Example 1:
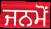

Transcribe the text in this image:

ਜਨਮੋਂ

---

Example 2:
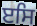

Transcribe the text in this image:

ੲਸਿ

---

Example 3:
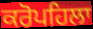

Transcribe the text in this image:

ਕਰੋਪਹਿਲਾ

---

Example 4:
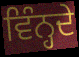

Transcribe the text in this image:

ਵਿੰਨ੍ਹਦੇ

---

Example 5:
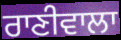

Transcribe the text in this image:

ਰਾਣੀਵਾਲਾ